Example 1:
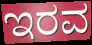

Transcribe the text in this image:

ಇರವ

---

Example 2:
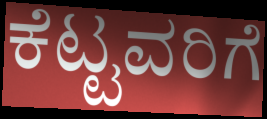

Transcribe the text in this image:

ಕೆಟ್ಟವರಿಗೆ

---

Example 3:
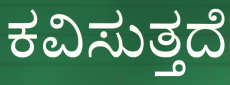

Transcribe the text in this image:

ಕವಿಸುತ್ತದೆ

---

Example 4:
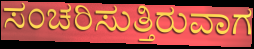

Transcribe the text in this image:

ಸಂಚರಿಸುತ್ತಿರುವಾಗ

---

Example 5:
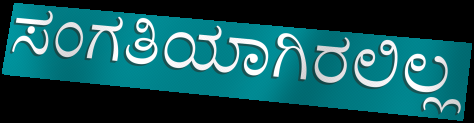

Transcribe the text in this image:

ಸಂಗತಿಯಾಗಿರಲಿಲ್ಲ